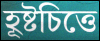
হূষ্টচিত্তে